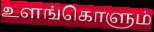
உளங்கொளும்